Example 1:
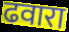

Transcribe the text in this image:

ढवारा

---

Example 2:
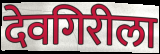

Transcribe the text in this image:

देवगिरीला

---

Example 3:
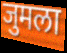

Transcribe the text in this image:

जुमला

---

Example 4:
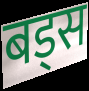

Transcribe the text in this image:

बड्स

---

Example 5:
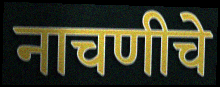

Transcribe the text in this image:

नाचणीचे